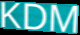
KDM